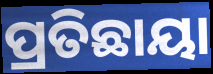
ପ୍ରତିଛାୟା